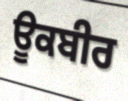
ਊਕਬੀਰ